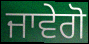
ਜਾਵੇਗੋ